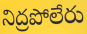
నిద్రపోలేరు